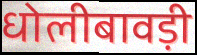
धोलीबावड़ी